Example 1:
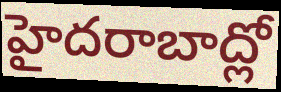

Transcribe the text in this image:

హైదరాబాద్లో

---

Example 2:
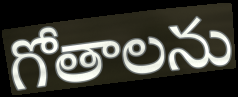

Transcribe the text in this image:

గోతాలను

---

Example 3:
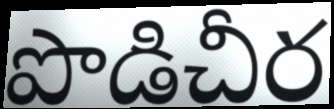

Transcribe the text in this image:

పొడిచీర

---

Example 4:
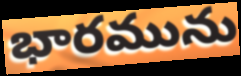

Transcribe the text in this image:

భారమును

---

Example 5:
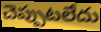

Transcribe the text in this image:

చెప్పుటలేదు